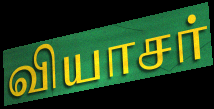
வியாசர்